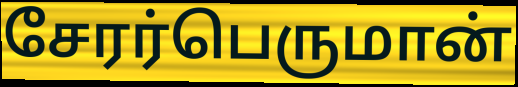
சேரர்பெருமான்